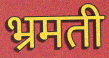
भ्रमती